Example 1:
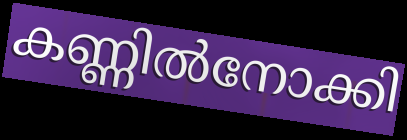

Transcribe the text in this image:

കണ്ണിൽനോക്കി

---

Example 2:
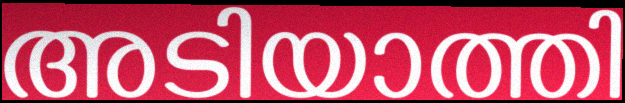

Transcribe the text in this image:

അടിയാത്തി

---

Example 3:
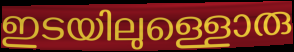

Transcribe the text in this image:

ഇടയിലുള്ളൊരു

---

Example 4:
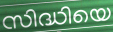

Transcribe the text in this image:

സിദ്ധിയെ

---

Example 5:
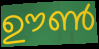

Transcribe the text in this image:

ഊൺ